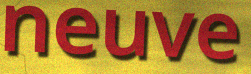
neuve